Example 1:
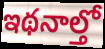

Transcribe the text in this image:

ఇథనాల్తో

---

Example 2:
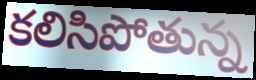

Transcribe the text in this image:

కలిసిపోతున్న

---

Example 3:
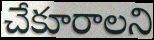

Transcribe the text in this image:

చేకూరాలని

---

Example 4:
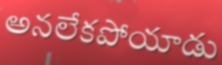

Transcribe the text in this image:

అనలేకపోయాడు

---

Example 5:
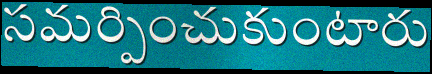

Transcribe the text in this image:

సమర్పించుకుంటారు